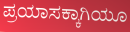
ಪ್ರಯಾಸಕ್ಕಾಗಿಯೂ